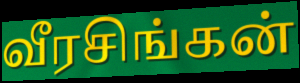
வீரசிங்கன்